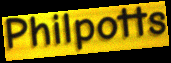
Philpotts